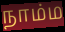
நாம்ம